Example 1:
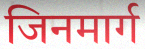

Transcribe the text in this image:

जिनमार्ग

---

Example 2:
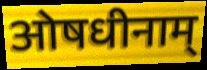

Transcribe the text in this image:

ओषधीनाम्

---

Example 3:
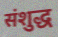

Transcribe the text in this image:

संशुद्ध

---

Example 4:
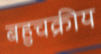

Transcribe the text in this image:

बहुचक्रीय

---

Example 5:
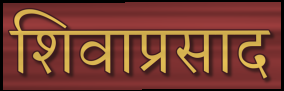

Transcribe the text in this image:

शिवाप्रसाद